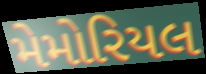
મેમોરિયલ